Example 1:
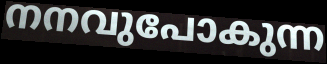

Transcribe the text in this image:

നനവുപോകുന്ന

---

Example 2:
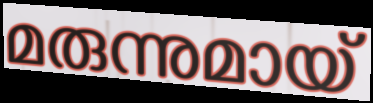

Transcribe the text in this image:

മരുന്നുമായ്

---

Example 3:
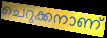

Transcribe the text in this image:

ചെറുക്കനാണ്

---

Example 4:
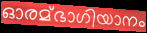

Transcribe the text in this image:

ഓരമ്ഭാഗിയാനം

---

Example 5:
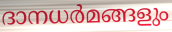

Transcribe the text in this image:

ദാനധർമങ്ങളും